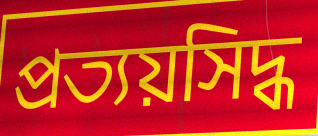
প্রত্যয়সিদ্ধ